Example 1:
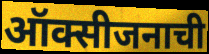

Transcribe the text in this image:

ऑक्सीजनाची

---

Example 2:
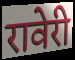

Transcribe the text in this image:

रावेरी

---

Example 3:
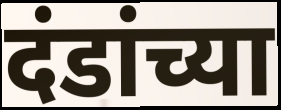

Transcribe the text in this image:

दंडांच्या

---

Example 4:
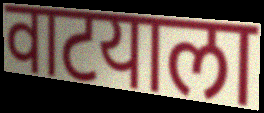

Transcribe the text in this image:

वाटयाला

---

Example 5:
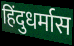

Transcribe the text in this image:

हिंदुधर्मास